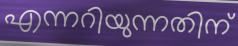
എന്നറിയുന്നതിന്